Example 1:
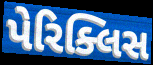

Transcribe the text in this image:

પેરિક્લિસ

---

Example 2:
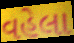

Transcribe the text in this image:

વહેલા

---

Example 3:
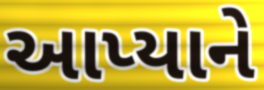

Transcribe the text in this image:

આપ્યાને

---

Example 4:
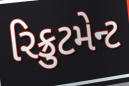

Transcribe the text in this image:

રિક્રુટમેન્ટ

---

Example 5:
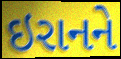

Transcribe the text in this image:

ઇરાનને